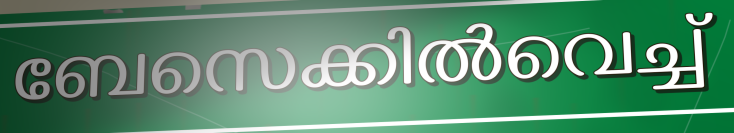
ബേസെക്കിൽവെച്ച്